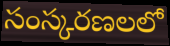
సంస్కరణలలో